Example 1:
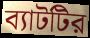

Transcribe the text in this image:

ব্যাটটির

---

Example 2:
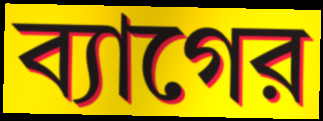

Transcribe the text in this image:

ব্যাগের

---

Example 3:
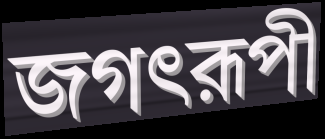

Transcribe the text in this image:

জগৎরূপী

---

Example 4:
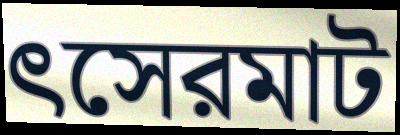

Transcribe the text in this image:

ৎসেরমাট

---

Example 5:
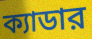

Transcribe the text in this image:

ক্যাডার